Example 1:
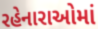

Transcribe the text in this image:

રહેનારાઓમાં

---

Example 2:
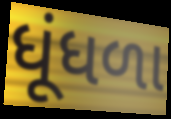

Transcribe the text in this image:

ધૂંધળા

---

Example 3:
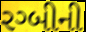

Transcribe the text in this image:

રગ્બીની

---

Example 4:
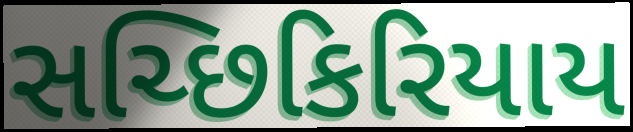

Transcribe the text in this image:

સચ્છિકિરિયાય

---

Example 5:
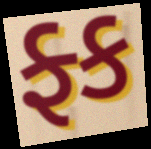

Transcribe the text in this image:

ફ્ક